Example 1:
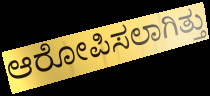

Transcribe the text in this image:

ಆರೋಪಿಸಲಾಗಿತ್ತು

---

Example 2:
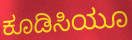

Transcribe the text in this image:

ಕೂಡಿಸಿಯೂ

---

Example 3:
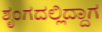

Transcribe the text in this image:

ಶೃಂಗದಲ್ಲಿದ್ದಾಗ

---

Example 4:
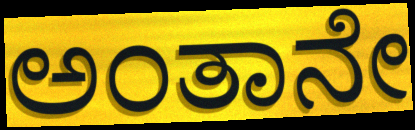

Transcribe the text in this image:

ಅಂತಾನೇ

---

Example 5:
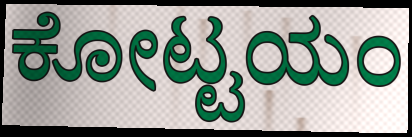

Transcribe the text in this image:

ಕೋಟ್ಟಯಂ